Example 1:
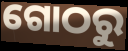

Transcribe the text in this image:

ଗୋଠରୁ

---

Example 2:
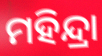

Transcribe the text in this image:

ମହିନ୍ଦ୍ରା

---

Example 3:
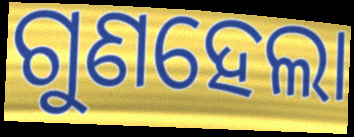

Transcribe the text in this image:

ଗୁଣହେଲା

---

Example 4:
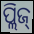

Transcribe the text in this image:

ପ୍ଲିଜ୍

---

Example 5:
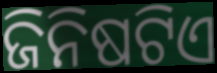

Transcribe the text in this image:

ଜିନିଷଟିଏ